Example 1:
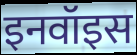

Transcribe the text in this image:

इनवॉइस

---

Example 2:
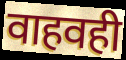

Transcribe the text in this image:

वाहवही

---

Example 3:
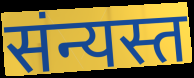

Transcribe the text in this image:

संन्यस्त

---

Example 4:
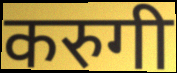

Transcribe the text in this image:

करुगी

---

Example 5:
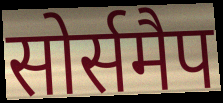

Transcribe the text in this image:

सोर्समैप